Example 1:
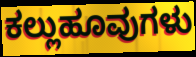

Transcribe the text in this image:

ಕಲ್ಲುಹೂವುಗಳು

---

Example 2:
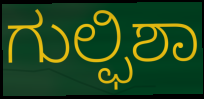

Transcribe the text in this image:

ಗುಲ್ಫಿಶಾ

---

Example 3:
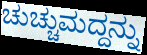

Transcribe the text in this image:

ಚುಚ್ಚುಮದ್ದನ್ನು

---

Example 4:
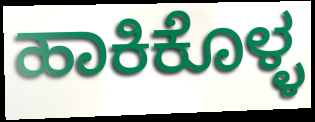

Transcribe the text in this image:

ಹಾಕಿಕೊಳ್ಳ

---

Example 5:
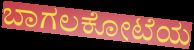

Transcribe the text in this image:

ಬಾಗಲಕೋಟೆಯ